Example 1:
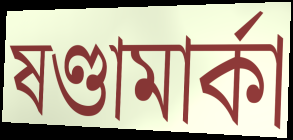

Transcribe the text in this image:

ষণ্ডামার্কা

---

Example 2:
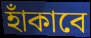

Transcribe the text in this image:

হাঁকাবে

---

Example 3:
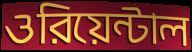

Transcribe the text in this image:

ওরিয়েন্টাল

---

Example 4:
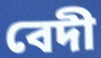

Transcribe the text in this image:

বেদী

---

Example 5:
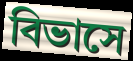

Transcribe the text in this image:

বিভাসে